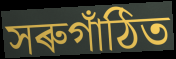
সৰুগাঁঠিত